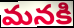
మనకి